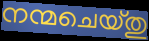
നന്മചെയ്തു